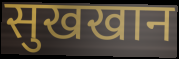
सुखखान